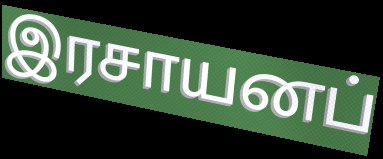
இரசாயனப்